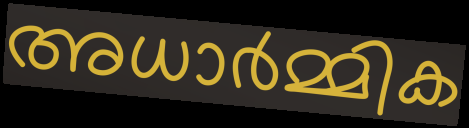
അധാർമ്മിക